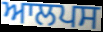
ਆਲਪਸ